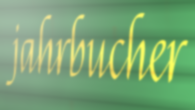
jahrbucher